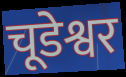
चूडेश्वर